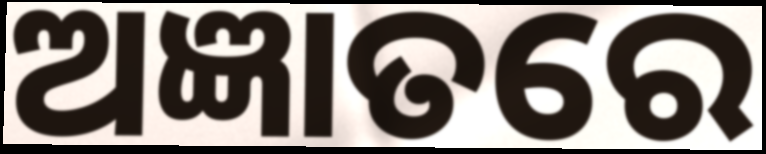
ଅଜ୍ଞାତରେ